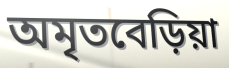
অমৃতবেড়িয়া